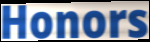
Honors